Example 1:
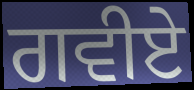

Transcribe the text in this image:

ਗਵੀਏ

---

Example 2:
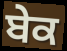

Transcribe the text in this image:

ਬੇਕ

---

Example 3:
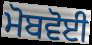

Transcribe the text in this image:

ਮੋਬਵੋਈ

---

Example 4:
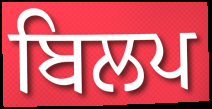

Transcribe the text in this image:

ਬਿਲਪ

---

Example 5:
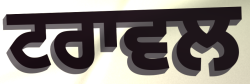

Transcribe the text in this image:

ਟਰਾਵਲ